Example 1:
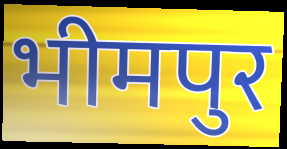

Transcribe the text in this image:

भीमपुर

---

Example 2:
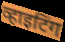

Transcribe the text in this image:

व्हाइटिंग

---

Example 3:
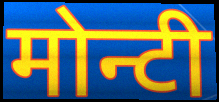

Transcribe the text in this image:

मोन्टी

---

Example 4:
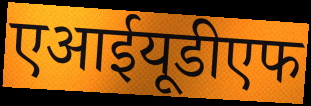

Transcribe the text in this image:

एआईयूडीएफ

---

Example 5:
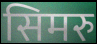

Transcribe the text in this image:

सिमरु